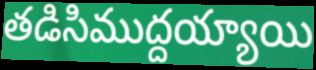
తడిసిముద్దయ్యాయి